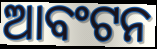
ଆବଂଟନ